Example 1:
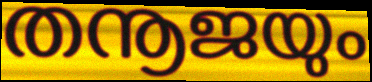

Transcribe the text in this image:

തനൂജയും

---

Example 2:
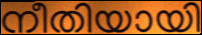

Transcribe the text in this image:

നീതിയായി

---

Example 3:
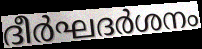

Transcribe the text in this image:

ദീർഘദർശനം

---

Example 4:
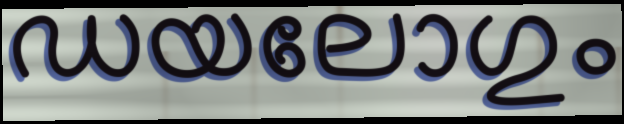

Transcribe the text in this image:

ഡയലോഗും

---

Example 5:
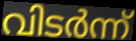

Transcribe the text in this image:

വിടർന്ന്